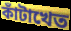
কাঁটাখেত